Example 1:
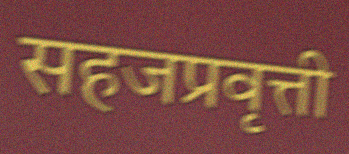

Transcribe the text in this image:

सहजप्रवृत्ती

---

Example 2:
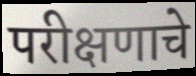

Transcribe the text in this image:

परीक्षणाचे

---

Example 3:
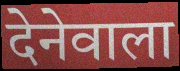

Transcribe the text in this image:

देनेवाला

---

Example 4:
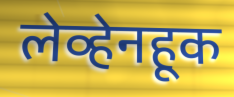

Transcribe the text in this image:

लेव्हेनहूक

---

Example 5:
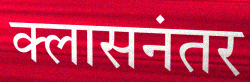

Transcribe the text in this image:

क्लासनंतर